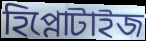
হিপ্নোটাইজ